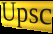
Upsc